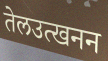
तेलउत्खनन